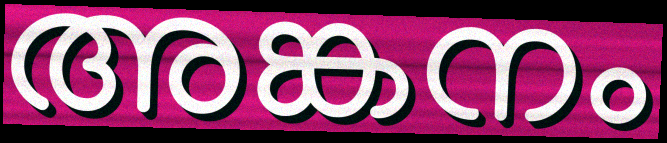
അങ്കനം